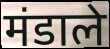
मंडाले